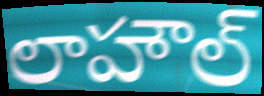
లాహౌల్